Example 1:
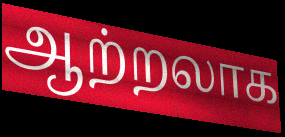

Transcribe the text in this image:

ஆற்றலாக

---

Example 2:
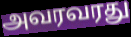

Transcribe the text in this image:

அவரவரது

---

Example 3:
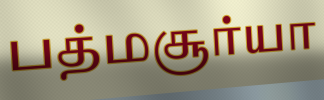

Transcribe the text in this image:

பத்மசூர்யா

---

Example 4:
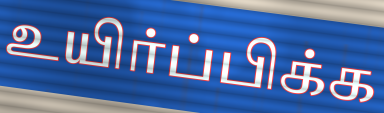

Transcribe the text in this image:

உயிர்ப்பிக்க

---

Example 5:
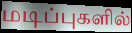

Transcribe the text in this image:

மடிப்புகளில்